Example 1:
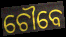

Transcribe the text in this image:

ଚୌବେ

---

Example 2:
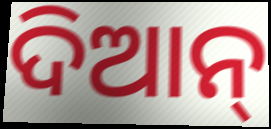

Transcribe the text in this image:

ଦିଆନ୍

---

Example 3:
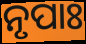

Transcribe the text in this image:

ନୃପାଃ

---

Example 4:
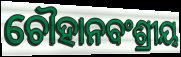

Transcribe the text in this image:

ଚୌହାନବଂଶ୍ରୀୟ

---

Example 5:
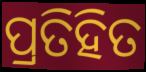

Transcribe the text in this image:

ପ୍ରତିହିତ